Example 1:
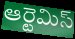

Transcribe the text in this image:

ఆర్టెమిస్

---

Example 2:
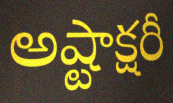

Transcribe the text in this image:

అష్టాక్షరీ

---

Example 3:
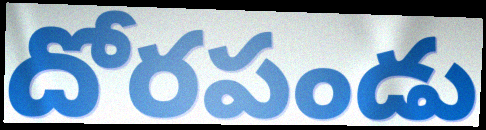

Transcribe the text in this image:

దోరపండు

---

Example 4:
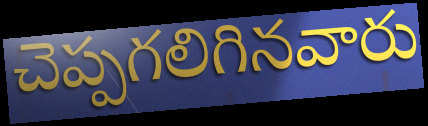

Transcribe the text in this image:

చెప్పగలిగినవారు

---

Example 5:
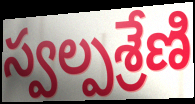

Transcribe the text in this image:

స్వల్పశ్రేణి